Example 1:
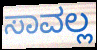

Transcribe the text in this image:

ಸಾವಲ್ಲ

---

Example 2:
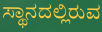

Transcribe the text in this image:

ಸ್ಥಾನದಲ್ಲಿರುವ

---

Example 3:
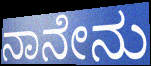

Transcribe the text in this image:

ನಾನೇನು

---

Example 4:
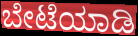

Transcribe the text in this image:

ಬೇಟೆಯಾಡಿ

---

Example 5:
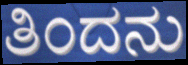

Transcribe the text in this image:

ತಿಂದನು